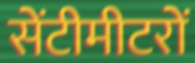
सेंटीमीटरों